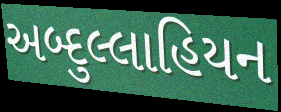
અબ્દુલ્લાહિયન